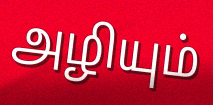
அழியும்